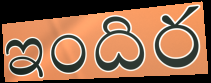
ఇందిర